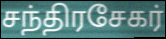
சந்திரசேகர்